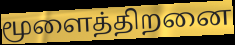
மூளைத்திறனை